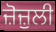
ਜ਼ੋਜ਼ੁਲੀ